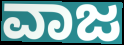
ವಾಜ